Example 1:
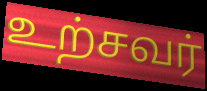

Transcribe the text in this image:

உற்சவர்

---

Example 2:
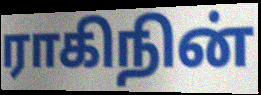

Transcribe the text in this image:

ராகிநின்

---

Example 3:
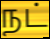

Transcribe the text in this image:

நட்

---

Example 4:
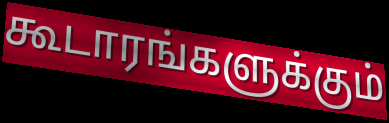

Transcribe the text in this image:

கூடாரங்களுக்கும்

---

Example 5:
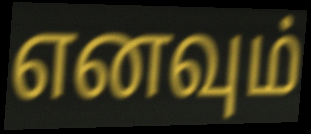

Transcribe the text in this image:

எனவும்